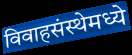
विवाहसंस्थेमध्ये